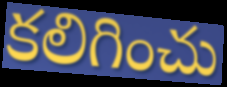
కలిగించు